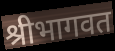
श्रीभागवत